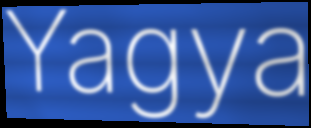
Yagya